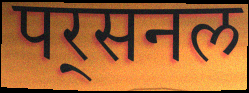
पर्सनल